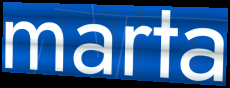
marta